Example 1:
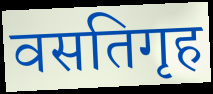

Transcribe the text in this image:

वसतिगृह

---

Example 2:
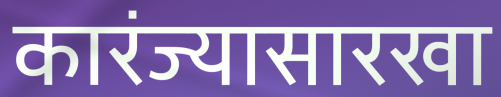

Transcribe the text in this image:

कारंज्यासारखा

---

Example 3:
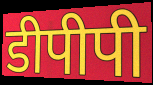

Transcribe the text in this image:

डीपीपी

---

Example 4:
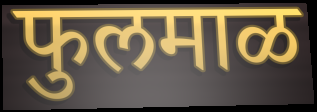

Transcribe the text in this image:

फुलमाळ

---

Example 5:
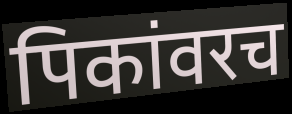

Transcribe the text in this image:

पिकांवरच